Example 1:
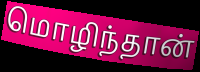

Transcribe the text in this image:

மொழிந்தான்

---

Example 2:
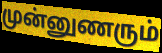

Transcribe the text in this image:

முன்னுணரும்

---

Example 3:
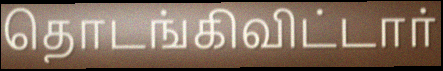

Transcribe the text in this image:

தொடங்கிவிட்டார்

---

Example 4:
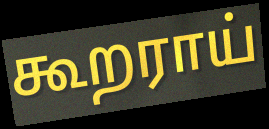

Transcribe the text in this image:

கூறராய்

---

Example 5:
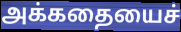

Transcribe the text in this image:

அக்கதையைச்